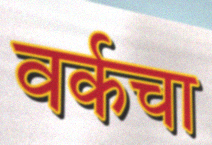
वर्कचा